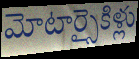
మోటార్సైకిళ్లు